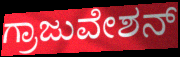
ಗ್ರಾಜುವೇಶನ್